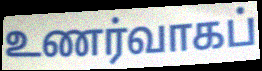
உணர்வாகப்